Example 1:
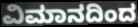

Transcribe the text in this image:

ವಿಮಾನದಿಂದ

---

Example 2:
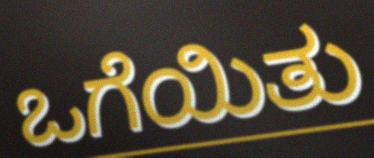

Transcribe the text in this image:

ಒಗೆಯಿತು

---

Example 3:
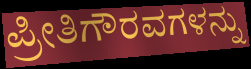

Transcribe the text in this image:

ಪ್ರೀತಿಗೌರವಗಳನ್ನು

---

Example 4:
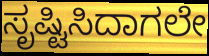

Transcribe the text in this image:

ಸೃಷ್ಟಿಸಿದಾಗಲೇ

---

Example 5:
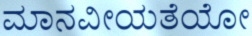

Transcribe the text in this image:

ಮಾನವೀಯತೆಯೋ